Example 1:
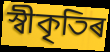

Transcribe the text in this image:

স্বীকৃতিৰ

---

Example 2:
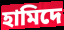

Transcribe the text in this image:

হামিদে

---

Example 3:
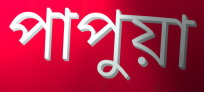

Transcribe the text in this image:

পাপুয়া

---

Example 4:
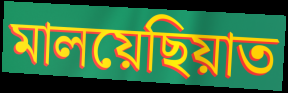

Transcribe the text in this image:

মালয়েছিয়াত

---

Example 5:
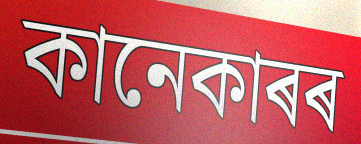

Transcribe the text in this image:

কানেকাৰৰ